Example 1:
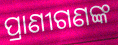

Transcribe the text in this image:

ପ୍ରାଣୀଗଣଙ୍କ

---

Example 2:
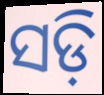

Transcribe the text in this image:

ସଡ଼ି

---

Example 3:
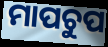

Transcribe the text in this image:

ମାପଚୁପ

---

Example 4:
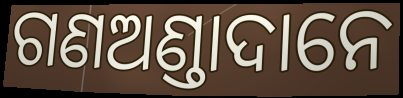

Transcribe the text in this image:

ଗଣଅଣ୍ଡାଦାନେ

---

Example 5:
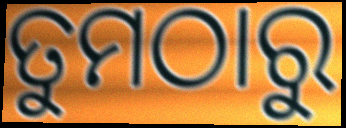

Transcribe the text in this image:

ତୁମଠାରୁ